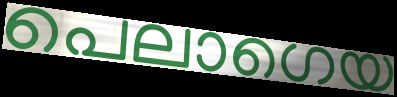
പെലാഗെയ